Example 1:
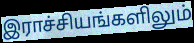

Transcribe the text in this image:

இராச்சியங்களிலும்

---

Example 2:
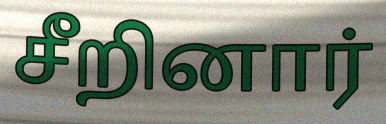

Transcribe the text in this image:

சீறினார்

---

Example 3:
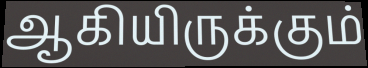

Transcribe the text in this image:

ஆகியிருக்கும்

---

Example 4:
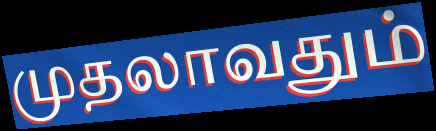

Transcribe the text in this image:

முதலாவதும்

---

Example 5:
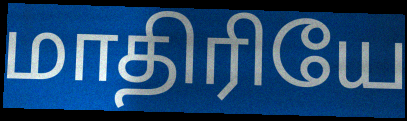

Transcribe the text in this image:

மாதிரியே